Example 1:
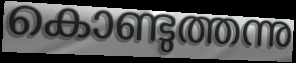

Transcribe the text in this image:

കൊണ്ടുത്തന്നു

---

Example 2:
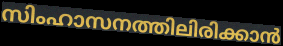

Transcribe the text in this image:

സിംഹാസനത്തിലിരിക്കാൻ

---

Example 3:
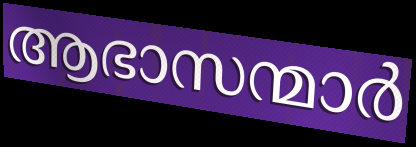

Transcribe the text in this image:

ആഭാസന്മാർ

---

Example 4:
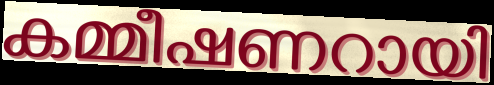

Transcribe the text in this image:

കമ്മീഷണറായി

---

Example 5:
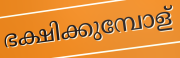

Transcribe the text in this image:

ഭക്ഷിക്കുമ്പോള്